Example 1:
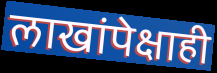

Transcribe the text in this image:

लाखांपेक्षाही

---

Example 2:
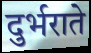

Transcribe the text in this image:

दुर्भराते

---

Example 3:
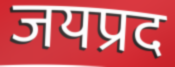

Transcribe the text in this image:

जयप्रद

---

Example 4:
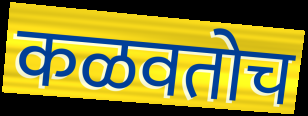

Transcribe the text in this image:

कळवतोच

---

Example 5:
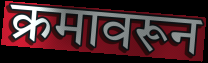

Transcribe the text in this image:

क्रमावरून